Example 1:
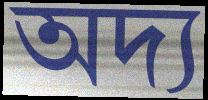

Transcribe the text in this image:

অদ্য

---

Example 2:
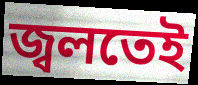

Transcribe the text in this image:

জ্বলতেই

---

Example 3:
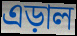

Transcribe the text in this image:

এড়াল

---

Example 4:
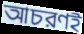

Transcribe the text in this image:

আচরণই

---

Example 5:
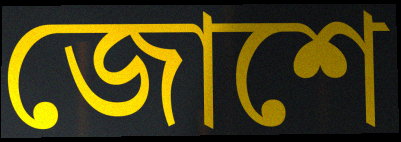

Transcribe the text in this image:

জোশে